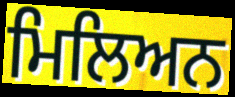
ਮਿਲਿਅਨ